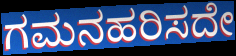
ಗಮನಹರಿಸದೇ